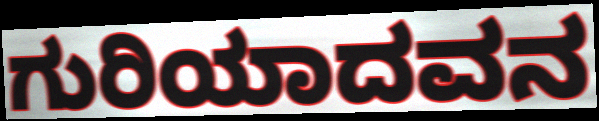
ಗುರಿಯಾದವನ